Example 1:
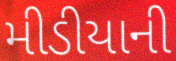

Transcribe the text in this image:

મીડીયાની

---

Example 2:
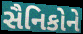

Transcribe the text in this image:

સૈનિકોને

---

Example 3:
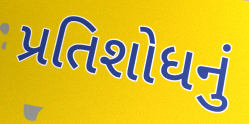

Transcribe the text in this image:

પ્રતિશોધનું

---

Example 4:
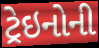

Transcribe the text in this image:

ટ્રેઇનોની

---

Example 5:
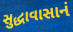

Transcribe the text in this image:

સુદ્ધાવાસાનં